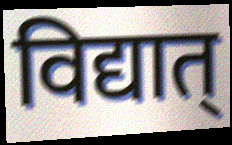
विद्यात्